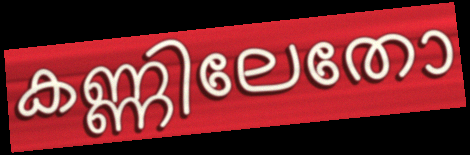
കണ്ണിലേതോ